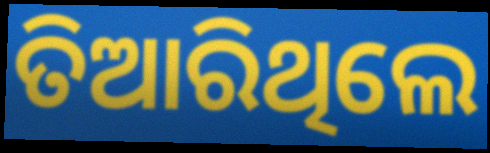
ତିଆରିଥିଲେ